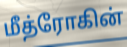
மீத்ரோகின்